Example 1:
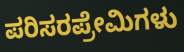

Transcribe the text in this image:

ಪರಿಸರಪ್ರೇಮಿಗಳು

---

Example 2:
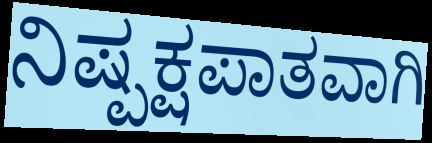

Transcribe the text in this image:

ನಿಷ್ಪಕ್ಷಪಾತವಾಗಿ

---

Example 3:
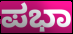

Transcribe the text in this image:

ಪಭಾ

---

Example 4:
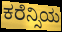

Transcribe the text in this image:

ಕರೆನ್ಸಿಯ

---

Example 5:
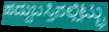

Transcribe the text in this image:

ಹದ್ದುಬಸ್ತಿನಲ್ಲಿಟ್ಟು